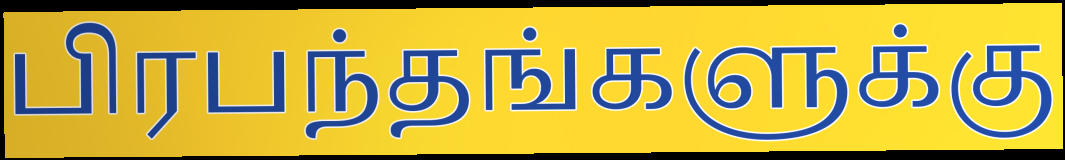
பிரபந்தங்களுக்கு